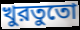
খুরতুতো